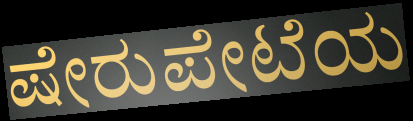
ಷೇರುಪೇಟೆಯ